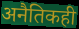
अनैतिकही